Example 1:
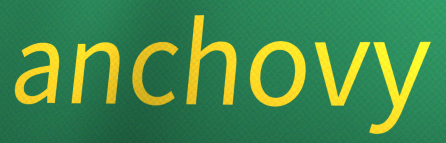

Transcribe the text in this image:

anchovy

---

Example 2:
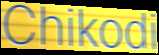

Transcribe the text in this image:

Chikodi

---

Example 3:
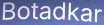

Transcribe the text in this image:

Botadkar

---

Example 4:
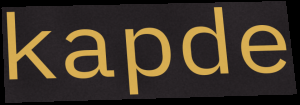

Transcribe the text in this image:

kapde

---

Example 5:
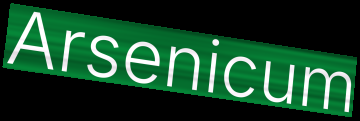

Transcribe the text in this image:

Arsenicum